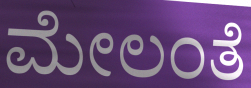
ಮೇಲಂತೆ